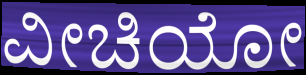
ವೀಚಿಯೋ